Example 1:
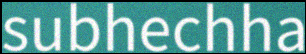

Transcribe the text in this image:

subhechha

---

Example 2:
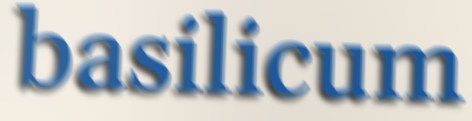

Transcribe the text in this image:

basilicum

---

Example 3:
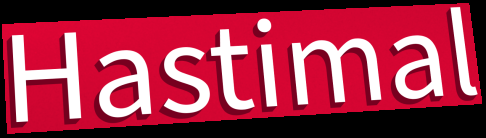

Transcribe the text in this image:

Hastimal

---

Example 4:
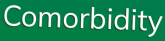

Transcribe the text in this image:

Comorbidity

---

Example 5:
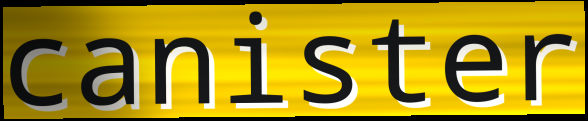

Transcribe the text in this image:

canister